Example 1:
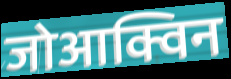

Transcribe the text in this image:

जोआक्विन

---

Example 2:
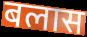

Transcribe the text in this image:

बलास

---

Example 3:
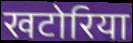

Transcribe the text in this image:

खटोरिया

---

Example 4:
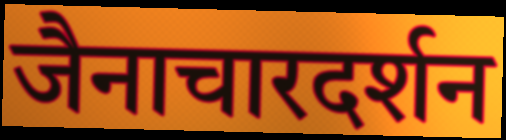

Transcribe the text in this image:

जैनाचारदर्शन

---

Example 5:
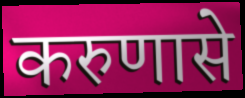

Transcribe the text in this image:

करुणासे